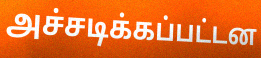
அச்சடிக்கப்பட்டன